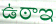
ఉఠాఇ